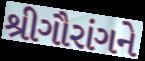
શ્રીગૌરાંગને